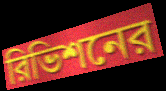
রিভিশনের